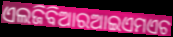
ଏଲଜିବିଆରଆଇଏମଏଚ